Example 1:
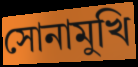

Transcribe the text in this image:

সোনামুখি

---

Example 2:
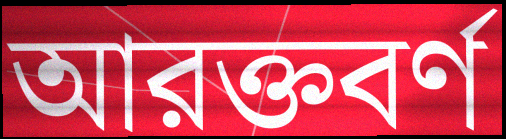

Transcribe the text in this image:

আরক্তবর্ণ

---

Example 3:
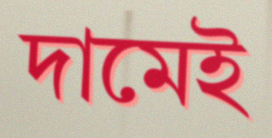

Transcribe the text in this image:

দামেই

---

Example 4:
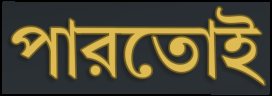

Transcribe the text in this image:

পারতোই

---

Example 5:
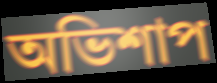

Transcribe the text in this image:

অভিশাপ